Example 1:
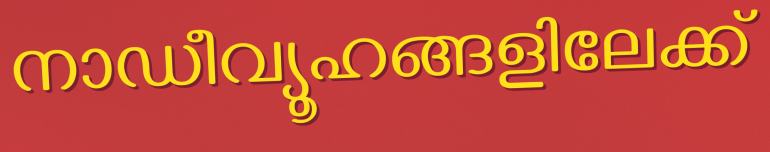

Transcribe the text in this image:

നാഡീവ്യൂഹങ്ങളിലേക്ക്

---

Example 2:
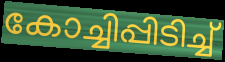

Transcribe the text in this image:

കോച്ചിപ്പിടിച്ച്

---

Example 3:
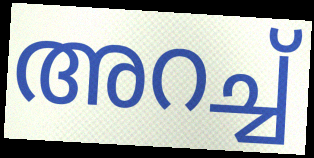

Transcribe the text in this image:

അറച്ച്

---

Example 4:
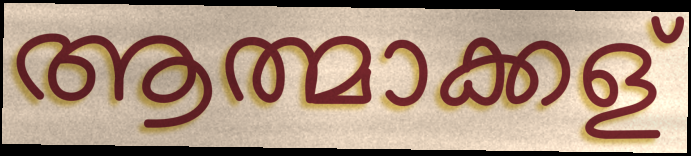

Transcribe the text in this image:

ആത്മാക്കള്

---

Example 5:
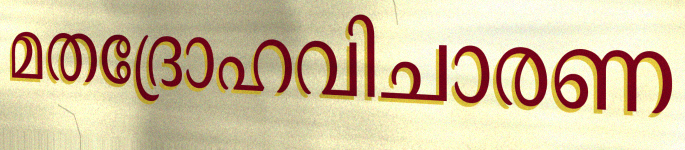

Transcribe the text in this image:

മതദ്രോഹവിചാരണ